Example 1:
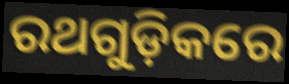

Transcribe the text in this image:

ରଥଗୁଡ଼ିକରେ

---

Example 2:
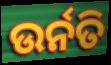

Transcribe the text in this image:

ଉର୍ନତି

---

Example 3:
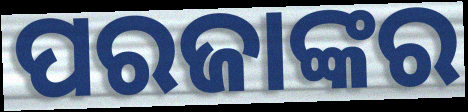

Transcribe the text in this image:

ପରଜାଙ୍କର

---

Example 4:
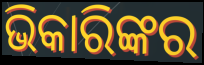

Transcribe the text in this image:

ଭିକାରିଙ୍କର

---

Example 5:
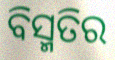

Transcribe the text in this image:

ବିସ୍ମତିର